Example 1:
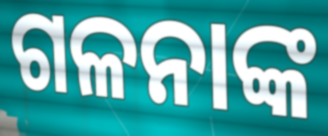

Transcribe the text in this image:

ଗଳନାଙ୍କ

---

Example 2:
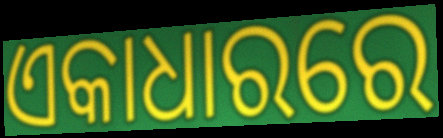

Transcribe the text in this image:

ଏକାଧାରରେ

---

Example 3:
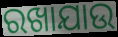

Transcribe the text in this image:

ରଖାଯାଉ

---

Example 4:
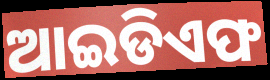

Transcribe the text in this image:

ଆଇଡିଏଫ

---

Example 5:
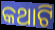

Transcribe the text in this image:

କଥାଟି